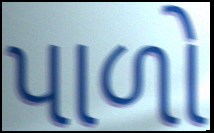
પાળો